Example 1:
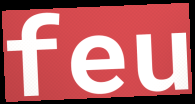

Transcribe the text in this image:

feu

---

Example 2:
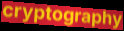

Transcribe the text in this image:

cryptography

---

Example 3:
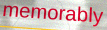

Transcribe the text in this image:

memorably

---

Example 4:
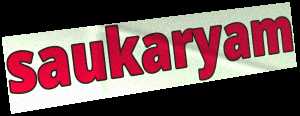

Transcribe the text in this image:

saukaryam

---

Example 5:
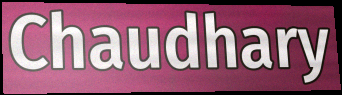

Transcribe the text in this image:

Chaudhary